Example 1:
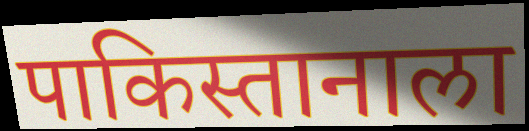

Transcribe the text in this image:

पाकिस्तानाला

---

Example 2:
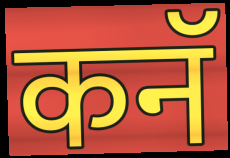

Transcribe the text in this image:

कनॅ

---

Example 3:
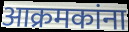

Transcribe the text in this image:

आक्रमकांना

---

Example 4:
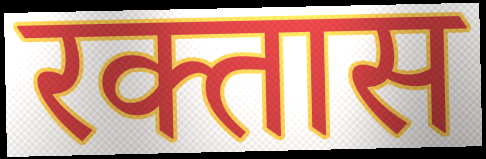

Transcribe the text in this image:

रक्तास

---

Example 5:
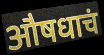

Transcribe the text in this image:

औषधाचं